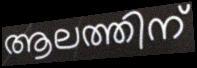
ആലത്തിന്